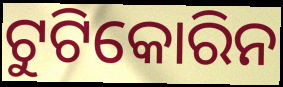
ଟୁଟିକୋରିନ